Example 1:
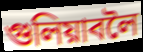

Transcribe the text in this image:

গুলিয়াবলৈ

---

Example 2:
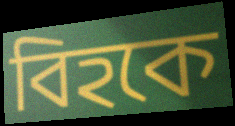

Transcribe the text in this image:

বিহকে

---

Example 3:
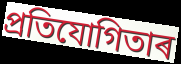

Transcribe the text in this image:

প্ৰতিযোগিতাৰ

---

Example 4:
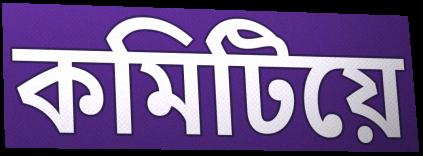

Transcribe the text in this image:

কমিটিয়ে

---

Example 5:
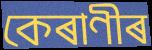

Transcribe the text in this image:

কেৰাণীৰ